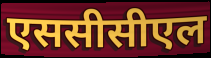
एससीसीएल